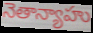
నెతాన్యాహు